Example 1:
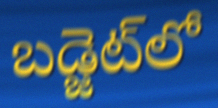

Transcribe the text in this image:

బడ్జెట్‌లో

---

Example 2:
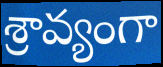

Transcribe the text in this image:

శ్రావ్యంగా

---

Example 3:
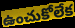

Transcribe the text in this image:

ఉంచుకోలేక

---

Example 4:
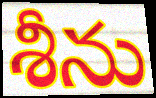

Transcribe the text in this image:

శీను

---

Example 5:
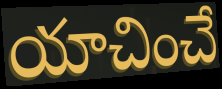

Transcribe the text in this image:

యాచించే